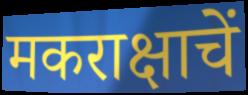
मकराक्षाचें